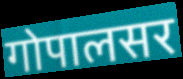
गोपालसर